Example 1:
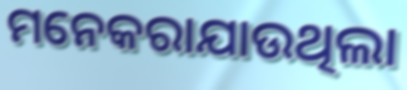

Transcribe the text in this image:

ମନେକରାଯାଉଥିଲା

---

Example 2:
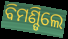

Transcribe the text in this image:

ବିମଣ୍ଡିଲେ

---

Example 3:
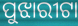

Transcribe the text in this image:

ପୁଝାରୀଟା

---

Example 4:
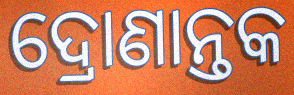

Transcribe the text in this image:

ଦ୍ରୋଣାନ୍ତକ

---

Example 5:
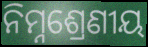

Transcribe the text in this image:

ନିମ୍ନଶ୍ରେଣୀୟ